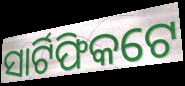
ସାର୍ଟିଫିକଟେ